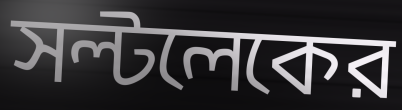
সল্টলেকের